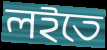
লইতে